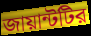
জায়ান্টটির